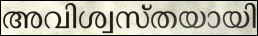
അവിശ്വസ്തയായി